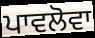
ਪਾਵਲੋਵਾ